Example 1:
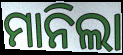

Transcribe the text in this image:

ମାନିଲା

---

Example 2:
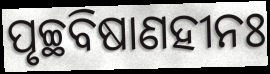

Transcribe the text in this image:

ପୃଚ୍ଛବିଷାଣହୀନଃ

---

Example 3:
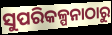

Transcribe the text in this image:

ସୁପରିକଳ୍ପନାଠାରୁ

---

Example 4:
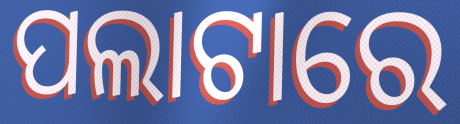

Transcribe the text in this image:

ପଲାଟାରେ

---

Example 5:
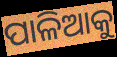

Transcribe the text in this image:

ପାଳିଆକୁ